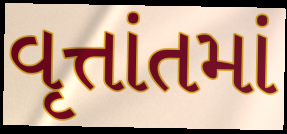
વૃત્તાંતમાં